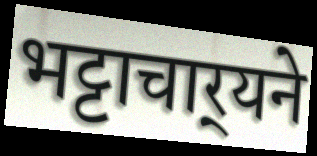
भट्टाचार्यने